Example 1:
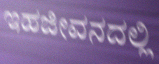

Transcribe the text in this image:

ಇಹಜೀವನದಲ್ಲಿ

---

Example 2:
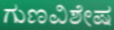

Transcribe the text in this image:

ಗುಣವಿಶೇಷ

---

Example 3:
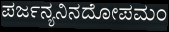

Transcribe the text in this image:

ಪರ್ಜನ್ಯನಿನದೋಪಮಂ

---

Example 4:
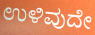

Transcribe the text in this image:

ಉಳಿವುದೇ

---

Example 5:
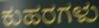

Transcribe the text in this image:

ಕುಹರಗಳು